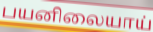
பயனிலையாய்